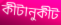
কীটানুকীট